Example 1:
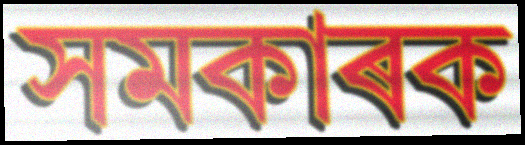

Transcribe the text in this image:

সমকাৰক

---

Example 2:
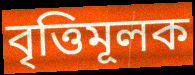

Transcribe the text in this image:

বৃত্তিমূলক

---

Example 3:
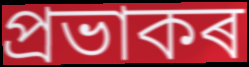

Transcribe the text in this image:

প্ৰভাকৰ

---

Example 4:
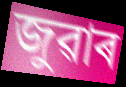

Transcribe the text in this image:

জুৱাৰ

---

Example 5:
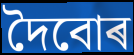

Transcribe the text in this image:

দৈবোৰ